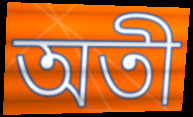
অতী